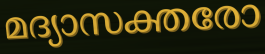
മദ്യാസക്തരോ